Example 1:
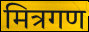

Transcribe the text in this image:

मित्रगण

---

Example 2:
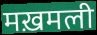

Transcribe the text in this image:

मख़मली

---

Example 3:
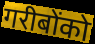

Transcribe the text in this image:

गरीबोंको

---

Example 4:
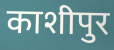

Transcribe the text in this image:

काशीपुर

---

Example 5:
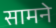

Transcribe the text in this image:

सामने